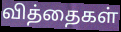
வித்தைகள்